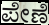
ಪೇಣೆ